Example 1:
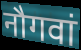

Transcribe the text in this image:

नौगवां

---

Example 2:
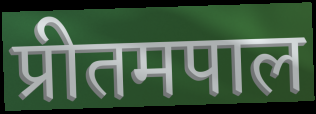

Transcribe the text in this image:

प्रीतमपाल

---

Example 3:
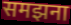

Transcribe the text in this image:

समझना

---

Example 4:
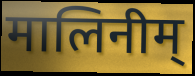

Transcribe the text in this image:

मालिनीम्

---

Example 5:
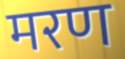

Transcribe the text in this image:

मरण